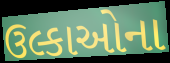
ઉલ્કાઓના